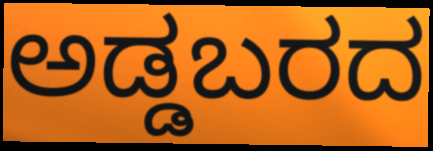
ಅಡ್ಡಬರದ